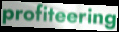
profiteering